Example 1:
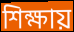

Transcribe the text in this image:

শিক্ষায়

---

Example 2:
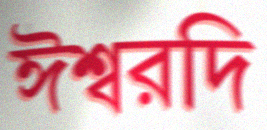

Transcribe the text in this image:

ঈশ্বরদি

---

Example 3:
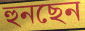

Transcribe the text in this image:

হুনছেন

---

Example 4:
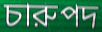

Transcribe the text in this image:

চারুপদ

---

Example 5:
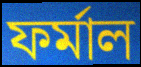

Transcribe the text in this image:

ফর্মাল